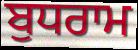
ਬੁਧਰਾਮ